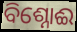
ବିଶ୍ନୋଈ